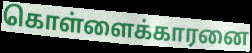
கொள்ளைக்காரனை